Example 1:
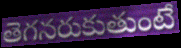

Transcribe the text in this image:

తెగనరుకుతుంటే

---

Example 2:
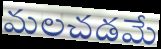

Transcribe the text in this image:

మలచడమే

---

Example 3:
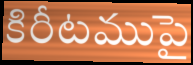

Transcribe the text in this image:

కిరీటముపై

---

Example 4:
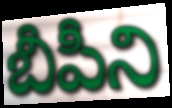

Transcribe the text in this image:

బీపీని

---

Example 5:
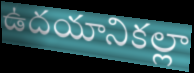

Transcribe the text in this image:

ఉదయానికల్లా